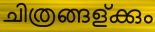
ചിത്രങ്ങള്ക്കും